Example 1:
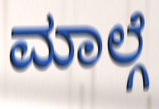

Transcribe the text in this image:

ಮಾಲ್ಗೆ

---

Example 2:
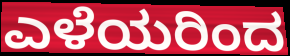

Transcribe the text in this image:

ಎಳೆಯರಿಂದ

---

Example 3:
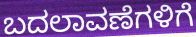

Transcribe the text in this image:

ಬದಲಾವಣೆಗಳಿಗೆ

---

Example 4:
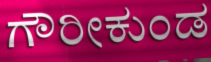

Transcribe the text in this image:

ಗೌರೀಕುಂಡ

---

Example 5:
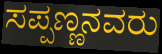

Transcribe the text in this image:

ಸಪ್ಪಣ್ಣನವರು